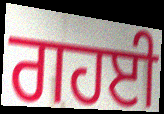
ਗਹਈ